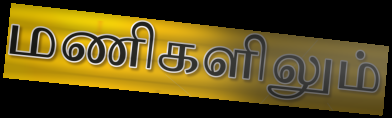
மணிகளிலும்